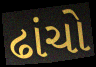
ઢાંચો